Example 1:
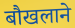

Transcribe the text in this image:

बौखलाने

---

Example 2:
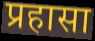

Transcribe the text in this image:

प्रहासा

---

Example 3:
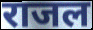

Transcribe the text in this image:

राजल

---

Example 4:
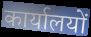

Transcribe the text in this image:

कार्यालयों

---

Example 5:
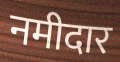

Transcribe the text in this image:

नमीदार